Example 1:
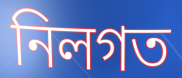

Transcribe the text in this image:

নিলগত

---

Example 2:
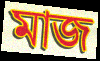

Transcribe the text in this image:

মাজ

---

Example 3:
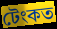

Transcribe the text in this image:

টেংকত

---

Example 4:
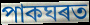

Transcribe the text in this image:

পাকঘৰত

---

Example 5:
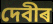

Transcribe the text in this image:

দেবীৰ